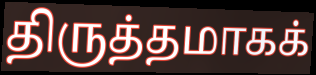
திருத்தமாகக்